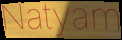
Natyam